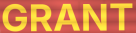
GRANT